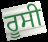
ਰੂਸੀ